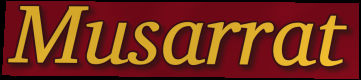
Musarrat